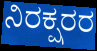
ನಿರಕ್ಷರರ